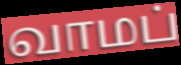
வாமப்